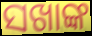
ସଖାଙ୍କ